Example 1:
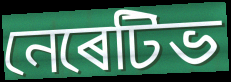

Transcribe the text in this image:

নেৰেটিভ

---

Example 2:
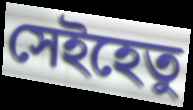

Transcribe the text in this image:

সেইহেতু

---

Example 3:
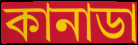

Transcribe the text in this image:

কানাডা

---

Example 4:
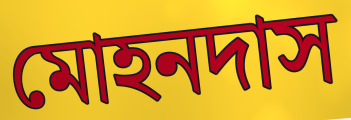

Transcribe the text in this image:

মোহনদাস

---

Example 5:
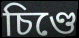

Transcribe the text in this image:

চিণ্ডে